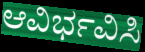
ಆವಿರ್ಭವಿಸಿ